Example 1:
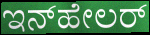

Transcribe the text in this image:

ಇನ್‌ಹೇಲರ್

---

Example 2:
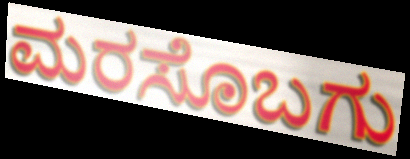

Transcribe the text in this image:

ಮರಸೊಬಗು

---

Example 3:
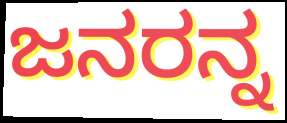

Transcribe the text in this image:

ಜನರನ್ನ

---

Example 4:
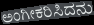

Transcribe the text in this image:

ಅಂಗೀಕರಿಸಿದನು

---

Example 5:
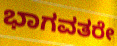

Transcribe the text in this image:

ಭಾಗವತರೇ